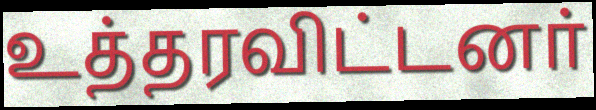
உத்தரவிட்டனர்